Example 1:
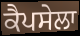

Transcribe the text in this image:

ਕੈਪਸੇਲਾ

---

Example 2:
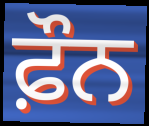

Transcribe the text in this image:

ਫ਼ੌਨ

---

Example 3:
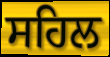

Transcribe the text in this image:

ਸਹਿਲ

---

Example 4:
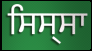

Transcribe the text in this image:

ਸਿਸ੍ਸਾ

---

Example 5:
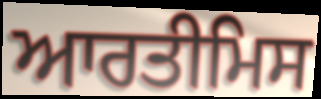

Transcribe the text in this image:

ਆਰਤੀਮਿਸ